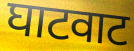
घाटवाट